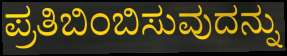
ಪ್ರತಿಬಿಂಬಿಸುವುದನ್ನು